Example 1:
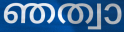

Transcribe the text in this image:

ഞത്വാ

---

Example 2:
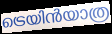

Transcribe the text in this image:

ട്രെയിൻയാത്ര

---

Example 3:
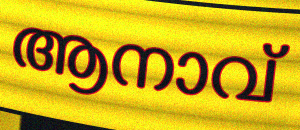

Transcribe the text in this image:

ആനാവ്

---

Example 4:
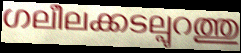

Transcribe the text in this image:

ഗലീലക്കടല്പുറത്തു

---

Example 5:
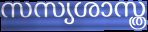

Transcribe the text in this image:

സസ്യശാസ്ത്ര